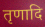
तृणादि